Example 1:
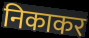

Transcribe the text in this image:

निकाकर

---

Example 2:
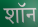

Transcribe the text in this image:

शॉन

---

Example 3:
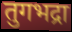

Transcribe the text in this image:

तुगभद्रा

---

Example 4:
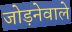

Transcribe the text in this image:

जोड़नेवाले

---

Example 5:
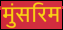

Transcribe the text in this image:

मुंसरिम